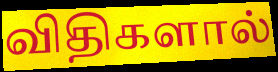
விதிகளால்